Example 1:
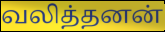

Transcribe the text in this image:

வலித்தனன்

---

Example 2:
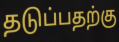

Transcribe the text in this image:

தடுப்பதற்கு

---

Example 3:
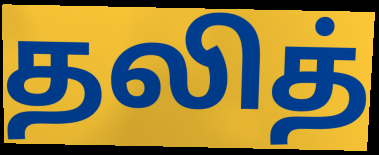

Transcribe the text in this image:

தலித்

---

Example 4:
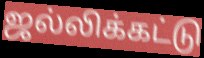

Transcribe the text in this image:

ஜல்லிக்கட்டு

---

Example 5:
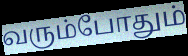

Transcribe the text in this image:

வரும்போதும்